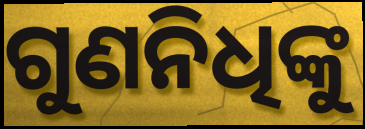
ଗୁଣନିଧିଙ୍କୁ